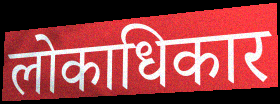
लोकाधिकार